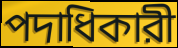
পদাধিকারী